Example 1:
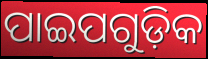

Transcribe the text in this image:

ପାଇପଗୁଡ଼ିକ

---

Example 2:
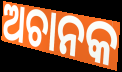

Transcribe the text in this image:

ଅଚାନକ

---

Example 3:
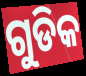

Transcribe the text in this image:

ଗୁଡିକ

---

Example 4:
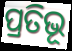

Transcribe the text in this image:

ପ୍ରତିଭୂ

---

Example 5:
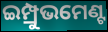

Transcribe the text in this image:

ଇମ୍ପ୍ରୁଭମେଣ୍ଟ